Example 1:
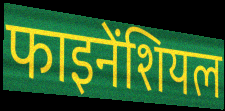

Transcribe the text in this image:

फाइनेंशियल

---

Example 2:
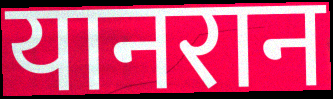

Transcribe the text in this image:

यानरान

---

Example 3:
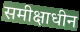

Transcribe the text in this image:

समीक्षाधीन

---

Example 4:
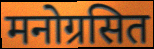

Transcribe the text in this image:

मनोग्रसित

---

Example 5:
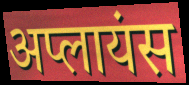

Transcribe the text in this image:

अप्‍लायंस